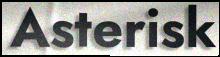
Asterisk